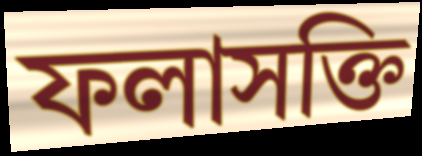
ফলাসক্তি